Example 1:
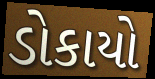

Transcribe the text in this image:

ડોકાયો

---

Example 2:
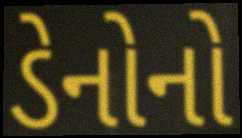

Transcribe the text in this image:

ડેનોનો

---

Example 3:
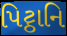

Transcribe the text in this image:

પિટ્ઠાનિ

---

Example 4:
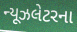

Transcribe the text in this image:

ન્યૂઝલેટરના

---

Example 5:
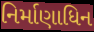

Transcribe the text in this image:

નિર્માણાધિન